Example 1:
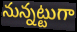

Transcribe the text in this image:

నున్నట్టుగా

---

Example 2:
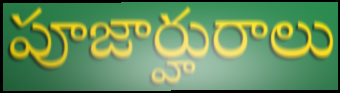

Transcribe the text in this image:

పూజార్హురాలు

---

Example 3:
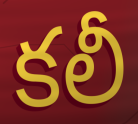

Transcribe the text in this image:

కలీ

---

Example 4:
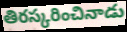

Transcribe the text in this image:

తిరస్కరించినాడు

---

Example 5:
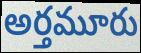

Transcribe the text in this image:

అర్తమూరు